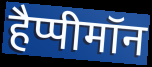
हैप्पीमॉन